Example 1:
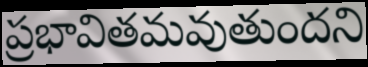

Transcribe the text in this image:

ప్రభావితమవుతుందని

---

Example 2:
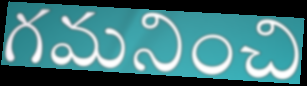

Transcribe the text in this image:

గమనించి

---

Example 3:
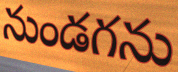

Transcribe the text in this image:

నుండగను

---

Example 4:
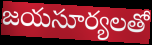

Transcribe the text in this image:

జయసూర్యలతో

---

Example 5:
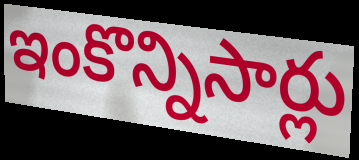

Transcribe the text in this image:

ఇంకొన్నిసార్లు